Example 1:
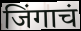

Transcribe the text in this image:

जिंगाचं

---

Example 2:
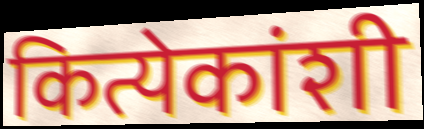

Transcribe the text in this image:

कित्येकांशी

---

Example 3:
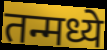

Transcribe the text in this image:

तन्मध्ये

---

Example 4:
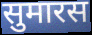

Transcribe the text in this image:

सुमारस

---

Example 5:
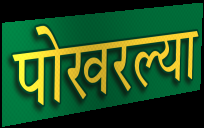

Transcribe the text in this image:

पोखरल्या